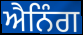
ਐਨਿੰਗ